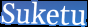
Suketu